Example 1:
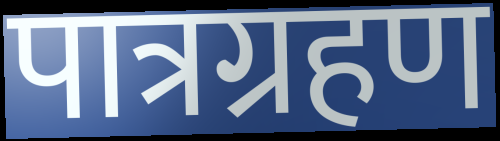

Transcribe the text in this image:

पात्रग्रहण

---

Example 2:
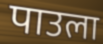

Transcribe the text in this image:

पाउला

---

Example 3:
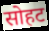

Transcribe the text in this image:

सोहट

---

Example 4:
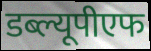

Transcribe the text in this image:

डब्ल्यूपीएफ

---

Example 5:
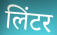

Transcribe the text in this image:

लिंटर